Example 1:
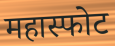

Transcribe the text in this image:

महास्फोट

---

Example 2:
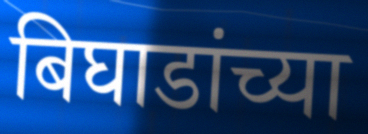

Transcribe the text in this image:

बिघाडांच्या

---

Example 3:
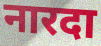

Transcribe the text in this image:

नारदा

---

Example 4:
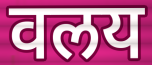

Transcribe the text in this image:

वलय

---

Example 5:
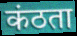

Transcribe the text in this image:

कंठता